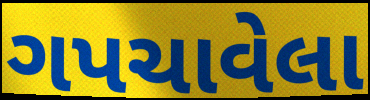
ગપચાવેલા